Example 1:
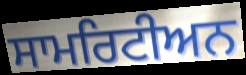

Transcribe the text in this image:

ਸਾਮਰਿਟੀਅਨ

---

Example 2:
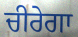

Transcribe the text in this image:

ਚੀਰੇਗਾ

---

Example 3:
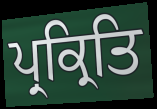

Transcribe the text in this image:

ਪ੍ਰਕ੍ਰਿਤਿ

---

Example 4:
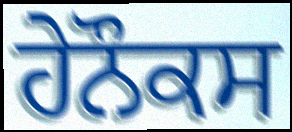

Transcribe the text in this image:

ਹੇਨੌਕਸ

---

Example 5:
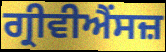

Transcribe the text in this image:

ਗ੍ਰੀਵੀਐਂਸਜ਼